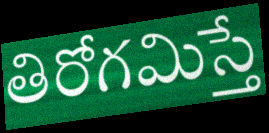
తిరోగమిస్తే